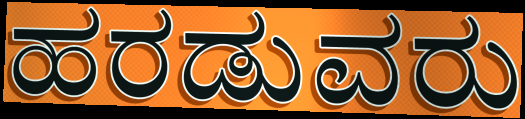
ಹರಡುವರು